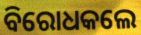
ବିରୋଧକଲେ